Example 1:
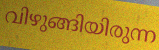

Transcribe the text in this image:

വിഴുങ്ങിയിരുന്ന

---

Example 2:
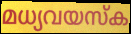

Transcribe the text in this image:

മധ്യവയസ്ക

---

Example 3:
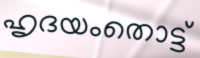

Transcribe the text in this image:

ഹൃദയംതൊട്ട്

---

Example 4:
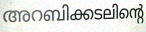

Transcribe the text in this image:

അറബിക്കടലിന്റെ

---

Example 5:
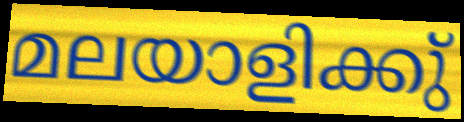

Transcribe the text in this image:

മലയാളിക്കു്